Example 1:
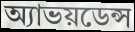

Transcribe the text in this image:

অ্যাভয়ডেন্স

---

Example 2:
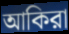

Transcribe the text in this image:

আকিরা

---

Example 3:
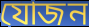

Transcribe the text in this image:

যোজন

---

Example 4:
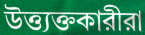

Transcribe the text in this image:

উত্ত্যক্তকারীরা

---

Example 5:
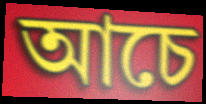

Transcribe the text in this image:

আচে